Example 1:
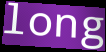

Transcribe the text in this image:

long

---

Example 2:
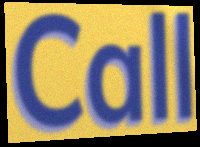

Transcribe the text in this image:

Call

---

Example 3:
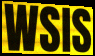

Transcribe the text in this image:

WSIS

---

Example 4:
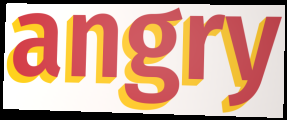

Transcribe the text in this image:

angry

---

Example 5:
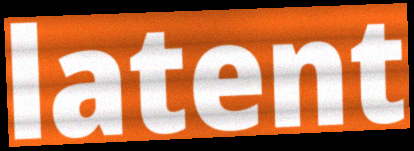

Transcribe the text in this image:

latent